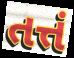
તત્તં